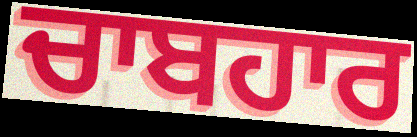
ਚਾਬਹਾਰ